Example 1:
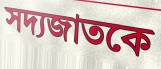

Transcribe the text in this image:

সদ্যজাতকে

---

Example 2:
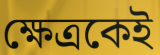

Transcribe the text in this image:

ক্ষেত্রকেই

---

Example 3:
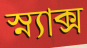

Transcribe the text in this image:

স্ন্যাক্স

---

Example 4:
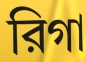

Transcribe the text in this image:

রিগা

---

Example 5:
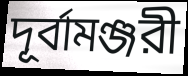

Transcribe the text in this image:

দূর্বামঞ্জরী